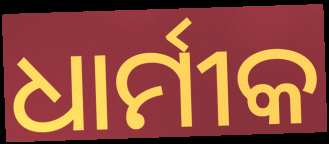
ଧାର୍ମୀକ